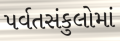
પર્વતસંકુલોમાં